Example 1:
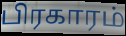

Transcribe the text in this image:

பிரகாரம்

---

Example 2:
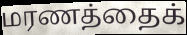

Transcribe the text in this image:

மரணத்தைக்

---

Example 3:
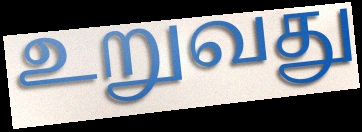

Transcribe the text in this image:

உறுவது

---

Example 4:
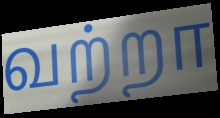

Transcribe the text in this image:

வற்றா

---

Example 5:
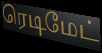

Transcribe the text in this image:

ரெடிமேட்